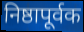
निष्ठापूर्वक